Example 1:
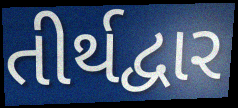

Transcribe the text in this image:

તીર્થદ્વાર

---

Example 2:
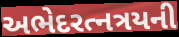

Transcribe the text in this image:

અભેદરત્નત્રયની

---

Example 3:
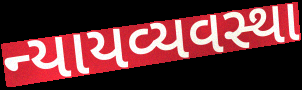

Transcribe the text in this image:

ન્યાયવ્યવસ્થા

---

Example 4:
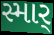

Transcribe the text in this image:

સ્માર્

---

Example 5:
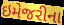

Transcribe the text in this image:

ઇમેજરીના